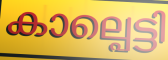
കാല്പെട്ടി